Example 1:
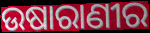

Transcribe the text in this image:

ଉଷାରାଣୀର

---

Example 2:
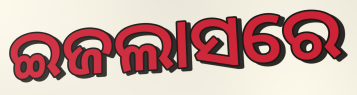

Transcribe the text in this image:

ଇଜଲାସରେ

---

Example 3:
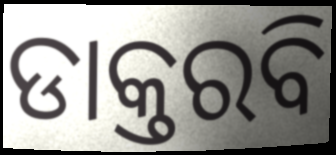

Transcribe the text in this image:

ଡାକ୍ତରବି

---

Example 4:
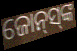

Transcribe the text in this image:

ଜୋନ୍‌ସ୍‌ଙ୍କ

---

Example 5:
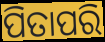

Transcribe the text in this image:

ପିତାପରି